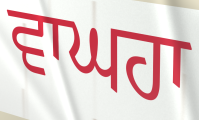
ਵਾਘਹਾ